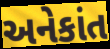
અનેકાંત